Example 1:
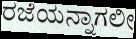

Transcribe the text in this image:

ರಜೆಯನ್ನಾಗಲೀ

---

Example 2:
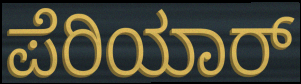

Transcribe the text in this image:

ಪೆರಿಯಾರ್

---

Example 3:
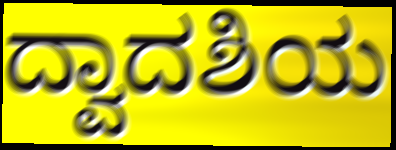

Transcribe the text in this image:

ದ್ವಾದಶಿಯ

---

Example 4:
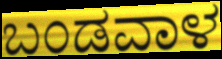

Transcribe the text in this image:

ಬಂಡವಾಳ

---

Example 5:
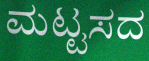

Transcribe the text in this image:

ಮಟ್ಟಸದ